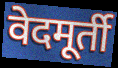
वेदमूर्ती